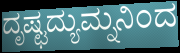
ದೃಷ್ಟದ್ಯುಮ್ನನಿಂದ